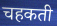
चहकती